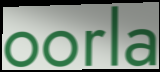
oorla